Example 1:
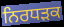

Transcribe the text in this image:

ਨਿਰਧੜਕ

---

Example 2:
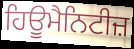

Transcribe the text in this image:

ਹਿਊਮੈਨਿਟੀਜ਼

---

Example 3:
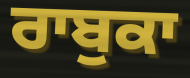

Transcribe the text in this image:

ਰਾਬੁਕਾ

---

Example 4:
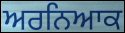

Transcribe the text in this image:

ਅਰਨਿਆਕ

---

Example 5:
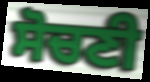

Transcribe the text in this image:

ਸੋਚਣੀ